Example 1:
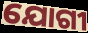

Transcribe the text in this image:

ଯୋଗୀ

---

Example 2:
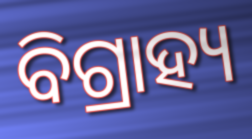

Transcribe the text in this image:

ବିଗ୍ରାହ୍ୟ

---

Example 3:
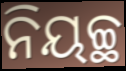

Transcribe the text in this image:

ନିୟଚ୍ଛ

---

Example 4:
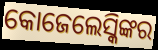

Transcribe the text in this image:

କୋଜେଲେସ୍କିଙ୍କର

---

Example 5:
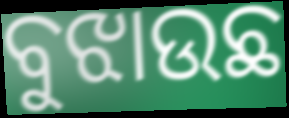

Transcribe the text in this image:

ବୁଝାଉଛ